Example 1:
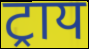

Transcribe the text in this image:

ट्राय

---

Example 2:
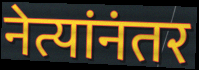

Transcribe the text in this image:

नेत्यांनंतर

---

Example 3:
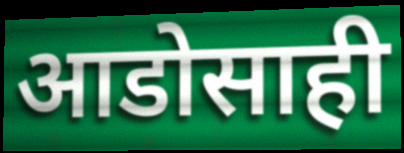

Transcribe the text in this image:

आडोसाही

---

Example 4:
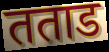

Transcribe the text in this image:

तताड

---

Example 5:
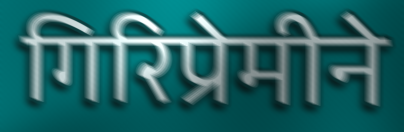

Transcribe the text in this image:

गिरिप्रेमीने